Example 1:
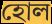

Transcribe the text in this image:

হোল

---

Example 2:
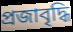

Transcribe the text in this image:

প্রজাবৃদ্ধি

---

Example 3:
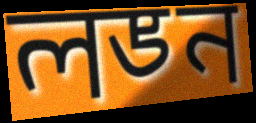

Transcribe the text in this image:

লঙ্ন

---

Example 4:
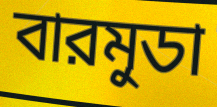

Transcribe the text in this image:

বারমুডা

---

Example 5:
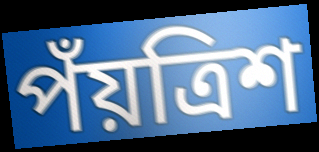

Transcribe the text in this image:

পঁয়ত্রিশ